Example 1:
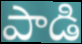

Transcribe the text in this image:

పాడి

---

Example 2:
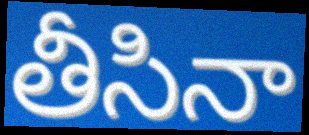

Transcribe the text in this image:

తీసినా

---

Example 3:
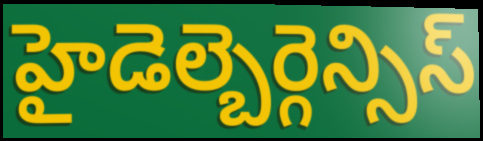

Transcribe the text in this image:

హైడెల్బెర్గెన్సిస్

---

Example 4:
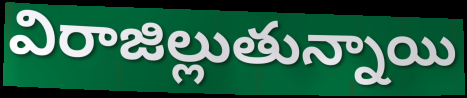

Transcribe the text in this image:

విరాజిల్లుతున్నాయి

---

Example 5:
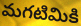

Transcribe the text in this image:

మగటిమికి